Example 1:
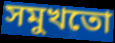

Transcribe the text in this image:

সমুখতো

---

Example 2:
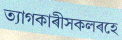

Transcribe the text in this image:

ত্যাগকাৰীসকলৰহে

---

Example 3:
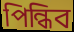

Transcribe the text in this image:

পিন্ধিব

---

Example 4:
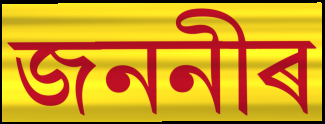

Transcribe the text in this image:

জননীৰ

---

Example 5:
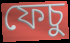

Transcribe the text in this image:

ফেচু